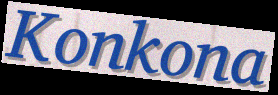
Konkona